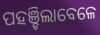
ପହଞ୍ଚିଲାବେଳେ